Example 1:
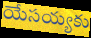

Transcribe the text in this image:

యేసయ్యకు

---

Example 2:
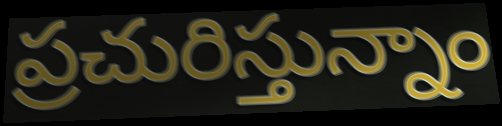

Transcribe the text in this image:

ప్రచురిస్తున్నాం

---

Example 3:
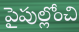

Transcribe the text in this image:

పైపుల్లోంచి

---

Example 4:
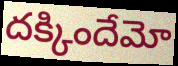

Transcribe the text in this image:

దక్కిందేమో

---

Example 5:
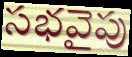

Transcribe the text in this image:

సభవైపు